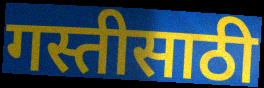
गस्तीसाठी